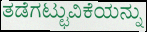
ತಡೆಗಟ್ಟುವಿಕೆಯನ್ನು